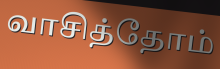
வாசித்தோம்